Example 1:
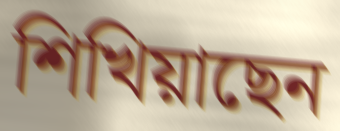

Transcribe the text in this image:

শিখিয়াছেন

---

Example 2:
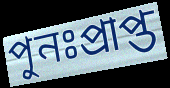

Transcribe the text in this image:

পুনঃপ্রাপ্ত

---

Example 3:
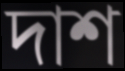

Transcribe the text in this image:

দাশ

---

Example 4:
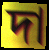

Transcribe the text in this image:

দা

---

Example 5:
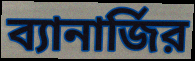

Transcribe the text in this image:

ব্যানার্জির